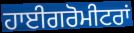
ਹਾਈਗਰੋਮੀਟਰਾਂ